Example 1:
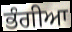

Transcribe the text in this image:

ਭੰਗੀਆ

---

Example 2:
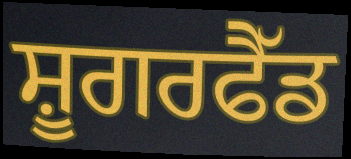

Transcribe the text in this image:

ਸ਼ੂਗਰਫੈੱਡ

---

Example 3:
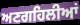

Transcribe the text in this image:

ਅਣਗਹਿਲੀਆਂ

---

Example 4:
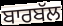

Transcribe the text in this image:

ਬਾਰਬੱਲ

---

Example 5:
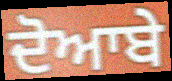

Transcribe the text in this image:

ਦੋਆਬੇ